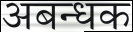
अबन्धक